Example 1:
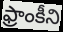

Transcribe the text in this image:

ఫ్రాంకీని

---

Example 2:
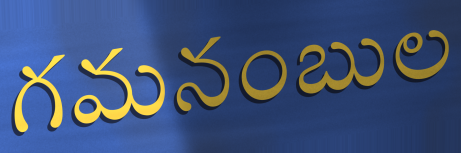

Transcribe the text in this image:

గమనంబుల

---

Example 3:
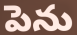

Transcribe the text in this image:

పెను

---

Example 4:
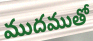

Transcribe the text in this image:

ముదముతో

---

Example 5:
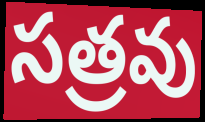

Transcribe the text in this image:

సత్రవు